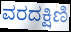
ವರದಕ್ಷಿಣಿ